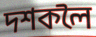
দশকলৈ